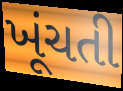
ખૂંચતી